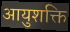
आयुशक्ति